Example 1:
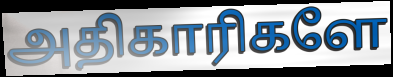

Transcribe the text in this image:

அதிகாரிகளே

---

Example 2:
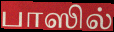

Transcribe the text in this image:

பாஸில்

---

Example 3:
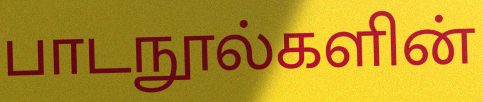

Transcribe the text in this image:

பாடநூல்களின்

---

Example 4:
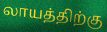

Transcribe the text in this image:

லாயத்திற்கு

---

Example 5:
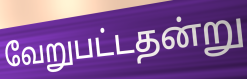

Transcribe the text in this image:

வேறுபட்டதன்று